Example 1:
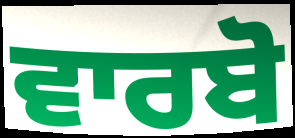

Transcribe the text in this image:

ਵਾਰਬੋ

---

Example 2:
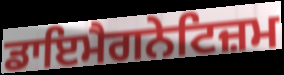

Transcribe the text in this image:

ਡਾਇਮੈਗਨੇਟਿਜ਼ਮ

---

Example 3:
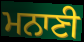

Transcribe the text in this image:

ਮਨਾਣੀ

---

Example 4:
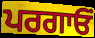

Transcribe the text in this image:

ਪਰਗਾਓਂ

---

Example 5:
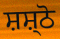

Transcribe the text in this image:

ਸ਼ਸ਼੍ਠੋ